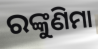
ରଙ୍କୁଣିମା